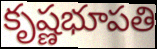
కృష్ణభూపతి